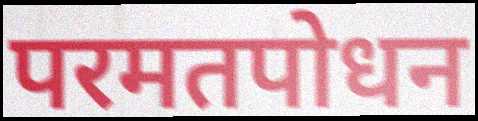
परमतपोधन